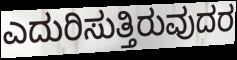
ಎದುರಿಸುತ್ತಿರುವುದರ